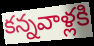
కన్నవాళ్లకి